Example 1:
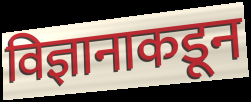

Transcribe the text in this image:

विज्ञानाकडून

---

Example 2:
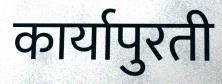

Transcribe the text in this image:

कार्यापुरती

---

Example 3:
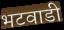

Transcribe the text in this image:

भटवाडी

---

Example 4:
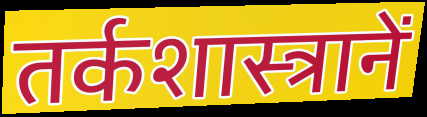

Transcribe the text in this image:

तर्कशास्त्रानें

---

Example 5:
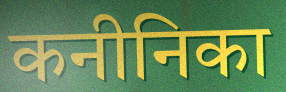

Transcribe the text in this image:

कनीनिका